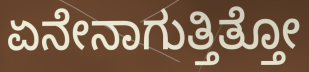
ಏನೇನಾಗುತ್ತಿತ್ತೋ